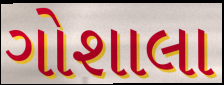
ગોશાલા